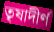
তৃষাদীর্ণ